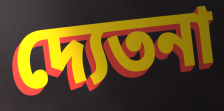
দ্যেতনা